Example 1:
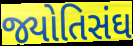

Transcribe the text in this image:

જ્યોતિસંઘ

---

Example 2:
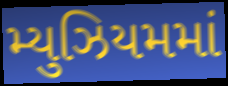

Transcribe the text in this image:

મ્યુઝિયમમાં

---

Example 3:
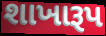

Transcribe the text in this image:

શાખારૂપ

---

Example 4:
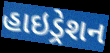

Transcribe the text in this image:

હાઇડ્રેશન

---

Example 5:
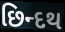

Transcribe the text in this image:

છિન્દથ